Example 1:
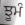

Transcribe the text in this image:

ਝੂਮੰ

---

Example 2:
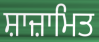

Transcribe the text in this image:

ਸ਼ਾਜ਼ਾਮਿਤ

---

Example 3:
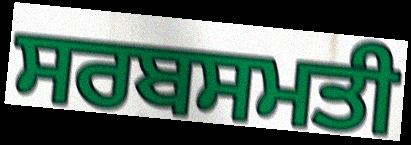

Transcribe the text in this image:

ਸਰਬਸਮਤੀ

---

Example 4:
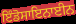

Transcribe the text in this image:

ਇੰਡੋਸਾਇਨਾਈਨ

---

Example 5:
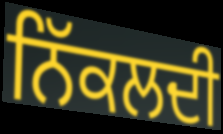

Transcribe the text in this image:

ਨਿੱਕਲਦੀ